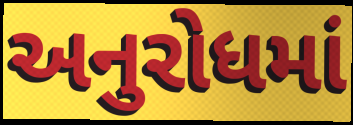
અનુરોધમાં